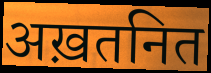
अख़तनित